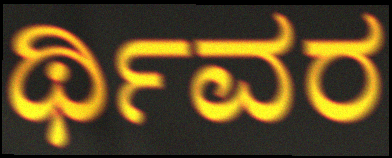
ರ್ಥಿವರ